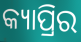
କ୍ୟାପ୍ରିର